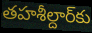
తహశీల్దార్‌కు